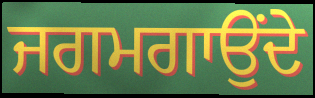
ਜਗਮਗਾਉਂਦੇ